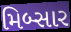
મિબ્સાર